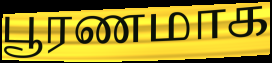
பூரணமாக